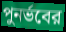
পুনর্ভবের